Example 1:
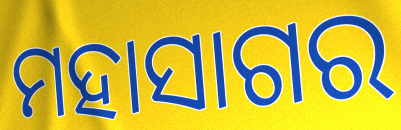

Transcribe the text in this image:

ମହାସାଗର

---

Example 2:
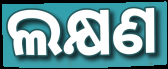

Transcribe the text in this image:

ଲକ୍ଷଣ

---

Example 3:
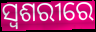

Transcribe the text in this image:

ସ୍ୱଶରୀରେ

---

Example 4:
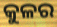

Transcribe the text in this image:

କୁଳର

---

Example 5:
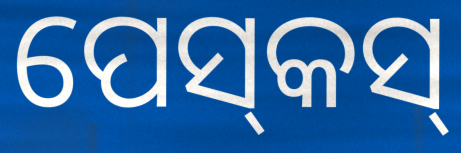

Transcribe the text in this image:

ପେସ୍‌କସ୍